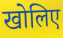
खोलिए